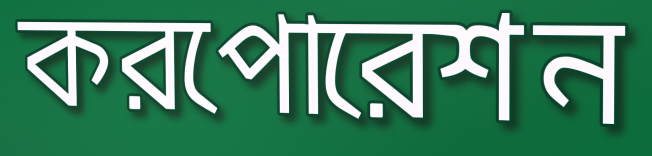
করপোরেশন